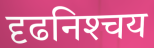
दृढनिश्‍चय